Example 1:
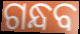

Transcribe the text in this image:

ଗନ୍ଧବ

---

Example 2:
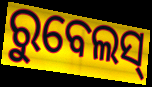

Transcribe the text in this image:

ରୁବେଲସ୍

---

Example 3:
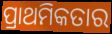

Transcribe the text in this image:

ପ୍ରାଥମିକତାର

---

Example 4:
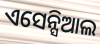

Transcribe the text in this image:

ଏସେନ୍ସିଆଲ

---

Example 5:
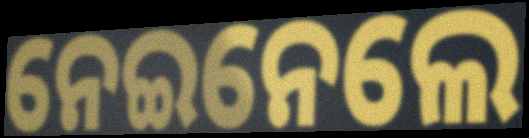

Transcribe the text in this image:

ନେଇନେଲେ